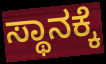
ಸ್ಥಾನಕ್ಕೆ